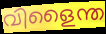
വിളൈന്ത